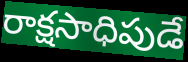
రాక్షసాధిపుడే